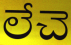
లేచె